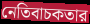
নেতিবাচকতার